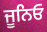
ਜੂਨਿਓ